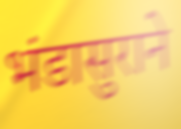
भंडासुराने